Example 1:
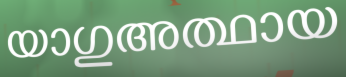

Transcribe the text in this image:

യാഗുഅത്ഥായ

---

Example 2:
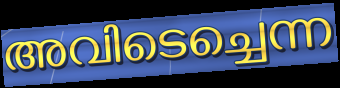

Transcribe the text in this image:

അവിടെച്ചെന്ന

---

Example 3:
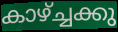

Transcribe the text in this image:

കാഴ്ച്ചക്കു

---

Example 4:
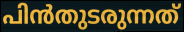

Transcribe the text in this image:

പിൻതുടരുന്നത്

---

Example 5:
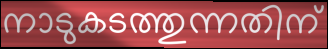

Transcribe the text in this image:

നാടുകടത്തുന്നതിന്